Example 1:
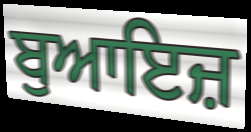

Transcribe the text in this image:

ਬੁਆਇਜ਼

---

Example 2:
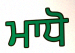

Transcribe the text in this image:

ਮਾਧੋ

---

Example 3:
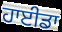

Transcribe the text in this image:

ਹਾਈਡਾ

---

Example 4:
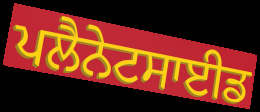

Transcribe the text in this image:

ਪਲੈਨੇਟਸਾਈਡ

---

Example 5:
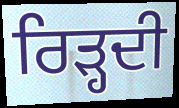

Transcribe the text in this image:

ਰਿੜ੍ਹਦੀ